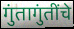
गुंतागुंतींचे